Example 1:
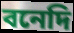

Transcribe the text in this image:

বনেদি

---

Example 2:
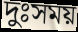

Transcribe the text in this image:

দুঃসময়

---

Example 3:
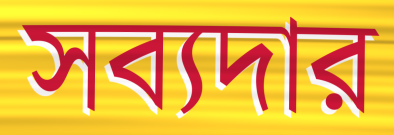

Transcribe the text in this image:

সব্যদার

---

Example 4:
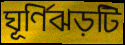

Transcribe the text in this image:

ঘূর্ণিঝড়টি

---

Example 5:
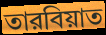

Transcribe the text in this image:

তারবিয়াত